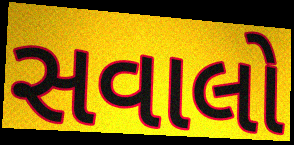
સવાલો